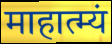
माहात्म्यं